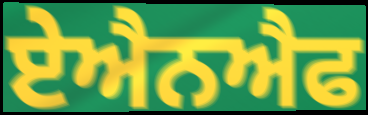
ਏਐਨਐਫ